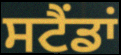
ਸਟੈਂਡਾਂ